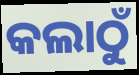
କଲାଠୁଁ